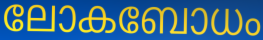
ലോകബോധം